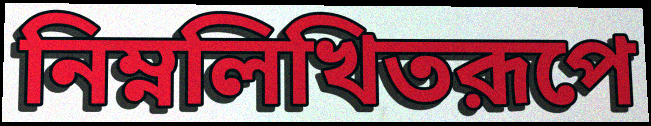
নিম্নলিখিতরূপে